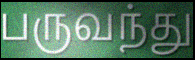
பருவந்து